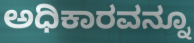
ಅಧಿಕಾರವನ್ನೂ